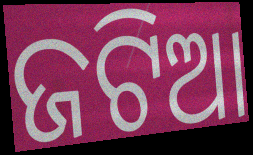
ଜଟିଆ